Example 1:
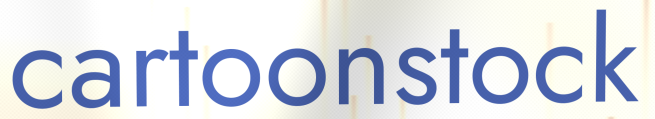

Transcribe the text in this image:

cartoonstock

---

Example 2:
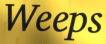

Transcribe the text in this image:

Weeps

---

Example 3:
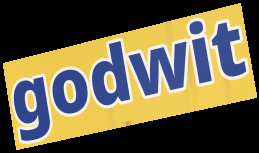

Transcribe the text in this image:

godwit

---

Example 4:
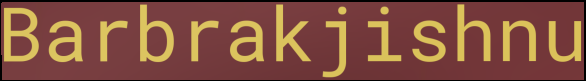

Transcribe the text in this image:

Barbrakjishnu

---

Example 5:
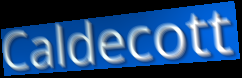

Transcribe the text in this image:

Caldecott